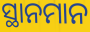
ସ୍ଥାନମାନ